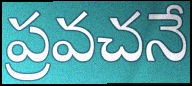
ప్రవచనే